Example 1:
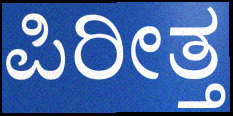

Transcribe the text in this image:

ಪಿರೀತ್ತ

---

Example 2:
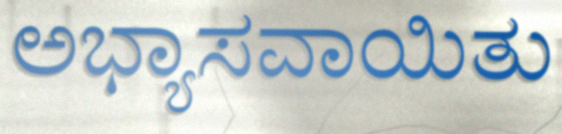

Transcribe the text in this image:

ಅಭ್ಯಾಸವಾಯಿತು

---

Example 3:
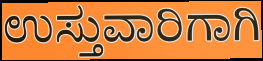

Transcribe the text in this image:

ಉಸ್ತುವಾರಿಗಾಗಿ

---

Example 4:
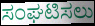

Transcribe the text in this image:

ಸಂಘಟಿಸಲು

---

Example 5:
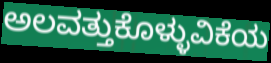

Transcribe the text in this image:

ಅಲವತ್ತುಕೊಳ್ಳುವಿಕೆಯ